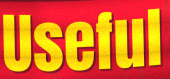
Useful